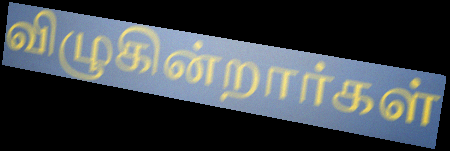
விழுகின்றார்கள்